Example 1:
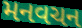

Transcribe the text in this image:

મનવચન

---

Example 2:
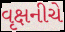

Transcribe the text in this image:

વૃક્ષનીચે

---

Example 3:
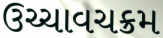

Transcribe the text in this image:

ઉચ્ચાવચક્રમ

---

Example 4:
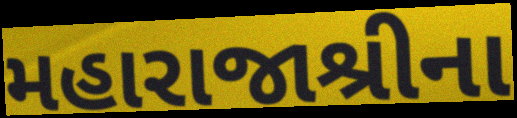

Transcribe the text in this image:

મહારાજાશ્રીના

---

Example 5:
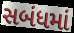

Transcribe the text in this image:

સબંધમાં